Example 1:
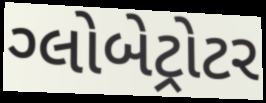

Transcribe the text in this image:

ગ્લોબેટ્રોટર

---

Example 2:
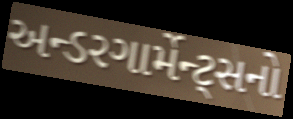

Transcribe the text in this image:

અન્ડરગાર્મેન્ટ્સનો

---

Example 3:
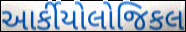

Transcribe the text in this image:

આર્કીયોલોજિકલ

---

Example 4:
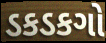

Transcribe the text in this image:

ડકડકગો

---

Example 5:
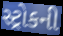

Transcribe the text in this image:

સ્ટ્રોકની